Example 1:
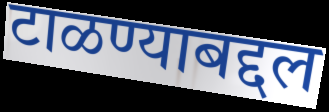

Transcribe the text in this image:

टाळण्याबद्दल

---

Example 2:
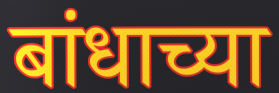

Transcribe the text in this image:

बांधाच्या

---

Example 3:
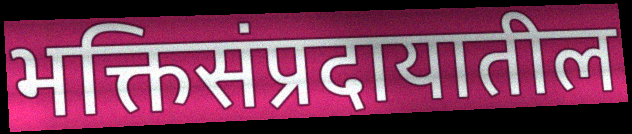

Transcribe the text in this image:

भक्तिसंप्रदायातील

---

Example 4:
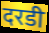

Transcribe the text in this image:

दरडी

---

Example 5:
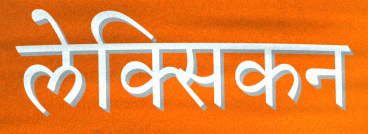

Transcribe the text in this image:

लेक्सिकन